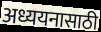
अध्ययनासाठी